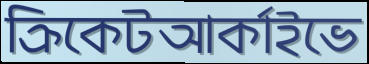
ক্রিকেটআর্কাইভে